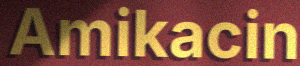
Amikacin